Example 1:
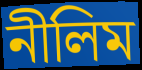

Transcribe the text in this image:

নীলিম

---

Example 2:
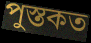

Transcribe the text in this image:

পুস্তকত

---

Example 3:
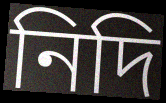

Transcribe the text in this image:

নিদি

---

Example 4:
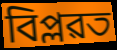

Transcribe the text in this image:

বিপ্লৱত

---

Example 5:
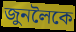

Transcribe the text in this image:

জুনলৈকে